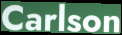
Carlson